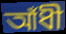
আঁধী